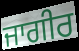
ਜਾਗੀਰ